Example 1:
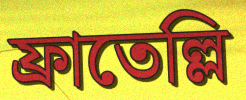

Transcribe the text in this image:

ফ্রাতেল্লি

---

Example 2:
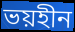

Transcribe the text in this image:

ভয়হীন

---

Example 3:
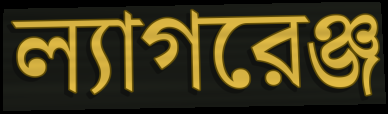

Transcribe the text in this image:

ল্যাগরেঞ্জ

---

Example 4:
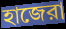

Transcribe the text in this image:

হাজেরা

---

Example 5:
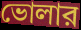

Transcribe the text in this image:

ভোলার